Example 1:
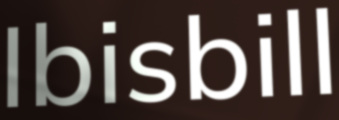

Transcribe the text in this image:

Ibisbill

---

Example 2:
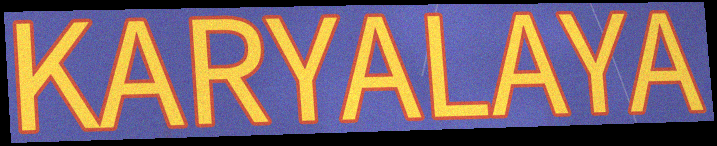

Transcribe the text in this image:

KARYALAYA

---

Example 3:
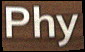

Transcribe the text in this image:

Phy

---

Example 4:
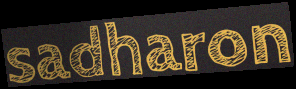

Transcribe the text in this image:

sadharon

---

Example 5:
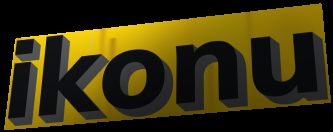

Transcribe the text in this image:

ikonu